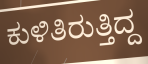
ಕುಳಿತಿರುತ್ತಿದ್ದ